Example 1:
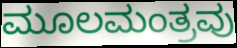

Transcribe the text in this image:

ಮೂಲಮಂತ್ರವು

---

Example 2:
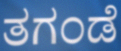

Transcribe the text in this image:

ತಗಂಡೆ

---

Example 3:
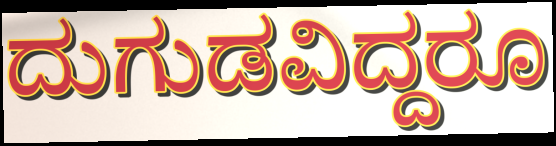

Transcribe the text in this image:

ದುಗುಡವಿದ್ದರೂ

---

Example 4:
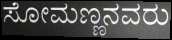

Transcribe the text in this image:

ಸೋಮಣ್ಣನವರು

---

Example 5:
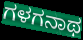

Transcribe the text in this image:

ಗಳಗನಾಥ